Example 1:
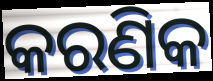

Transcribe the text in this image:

କରଣିକ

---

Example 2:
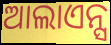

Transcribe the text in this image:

ଆଲାଏନ୍ସ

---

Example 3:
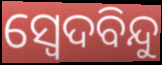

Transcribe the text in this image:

ସ୍ୱେଦବିନ୍ଦୁ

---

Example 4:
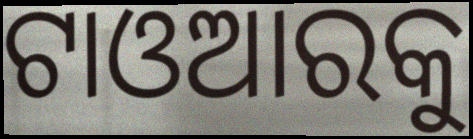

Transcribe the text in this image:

ଟାଓଆରକୁ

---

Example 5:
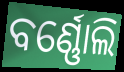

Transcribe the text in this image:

ବର୍ଣ୍ଣୋଲି